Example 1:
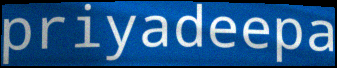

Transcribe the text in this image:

priyadeepa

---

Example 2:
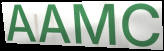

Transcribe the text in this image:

AAMC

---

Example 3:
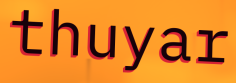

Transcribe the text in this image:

thuyar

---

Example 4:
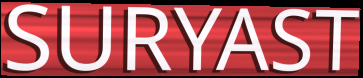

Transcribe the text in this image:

SURYAST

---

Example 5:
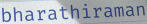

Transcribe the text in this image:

bharathiraman